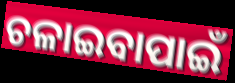
ଚଳାଇବାପାଇଁ